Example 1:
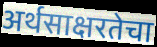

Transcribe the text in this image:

अर्थसाक्षरतेचा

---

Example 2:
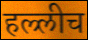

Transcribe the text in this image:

हल्लीच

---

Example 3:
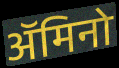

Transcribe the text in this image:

ॲमिनो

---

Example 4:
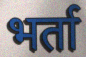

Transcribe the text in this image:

भर्ता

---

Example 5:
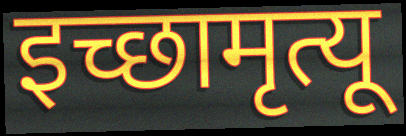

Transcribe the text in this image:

इच्छामृत्यू